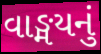
વાઙ્મયનું